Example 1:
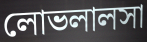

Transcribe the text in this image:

লোভলালসা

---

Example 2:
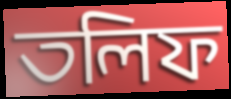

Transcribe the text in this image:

তলিফ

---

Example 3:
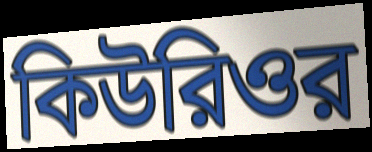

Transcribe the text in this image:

কিউরিওর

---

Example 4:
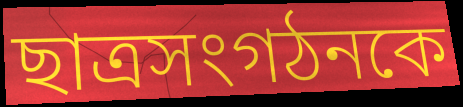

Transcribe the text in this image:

ছাত্রসংগঠনকে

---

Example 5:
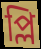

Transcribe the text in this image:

প্লি